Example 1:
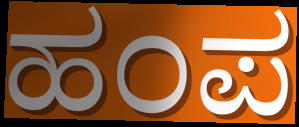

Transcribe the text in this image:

ಹಂಪ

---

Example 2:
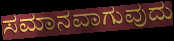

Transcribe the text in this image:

ಸಮಾನವಾಗುವುದು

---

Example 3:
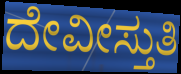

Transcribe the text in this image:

ದೇವೀಸ್ತುತಿ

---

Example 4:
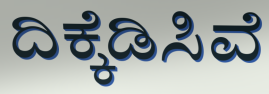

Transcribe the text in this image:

ದಿಕ್ಕೆಡಿಸಿವೆ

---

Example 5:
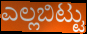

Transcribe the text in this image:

ಎಲ್ಲಬಿಟ್ಟು